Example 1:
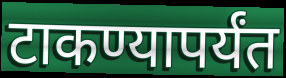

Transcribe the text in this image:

टाकण्यापर्यंत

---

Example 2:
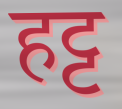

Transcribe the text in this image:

हट्ट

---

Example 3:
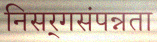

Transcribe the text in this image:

निसर्गसंपन्नता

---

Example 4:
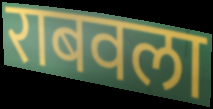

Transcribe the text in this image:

राबवला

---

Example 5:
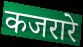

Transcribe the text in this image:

कजरारे